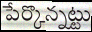
పేర్కొన్నట్టు